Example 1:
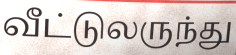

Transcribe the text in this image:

வீட்டுலருந்து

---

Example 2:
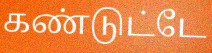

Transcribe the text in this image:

கண்டுட்டே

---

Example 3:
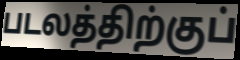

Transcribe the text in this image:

படலத்திற்குப்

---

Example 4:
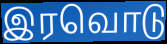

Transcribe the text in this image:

இரவொடு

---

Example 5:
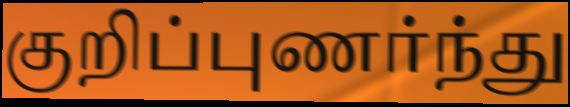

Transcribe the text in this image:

குறிப்புணர்ந்து